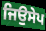
ਜਿਉਸੇਪ